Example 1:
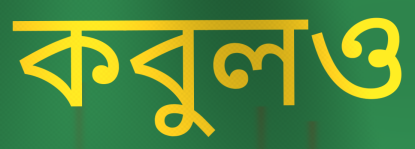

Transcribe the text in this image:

কবুলও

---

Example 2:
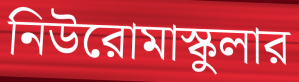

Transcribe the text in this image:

নিউরোমাস্কুলার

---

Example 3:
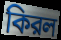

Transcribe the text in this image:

কিরল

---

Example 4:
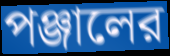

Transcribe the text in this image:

পঞ্জালের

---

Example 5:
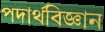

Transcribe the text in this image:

পদার্থবিজ্ঞান